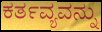
ಕರ್ತವ್ಯವನ್ನು